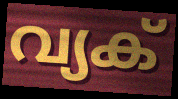
വ്യക്